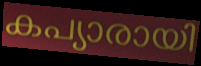
കപ്യാരായി